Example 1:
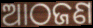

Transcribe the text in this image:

ଆଠଜଣ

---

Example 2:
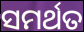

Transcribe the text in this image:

ସମର୍ଥତ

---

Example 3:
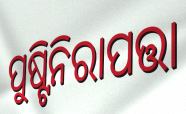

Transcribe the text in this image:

ପୁଷ୍ଟିନିରାପତ୍ତା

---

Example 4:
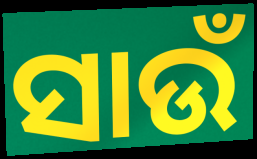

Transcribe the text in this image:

ସାଉଁ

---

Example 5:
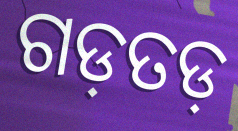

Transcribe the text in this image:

ଗଡ଼ତଡ଼